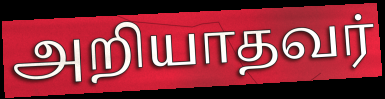
அறியாதவர்